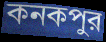
কনকপুর